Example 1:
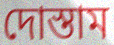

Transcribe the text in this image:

দোস্তাম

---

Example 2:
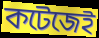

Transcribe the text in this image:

কটেজেই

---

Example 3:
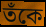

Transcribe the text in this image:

তঁকে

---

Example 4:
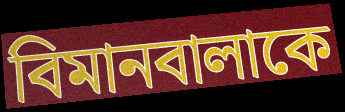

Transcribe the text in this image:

বিমানবালাকে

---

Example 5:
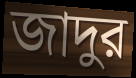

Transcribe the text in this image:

জাদুর